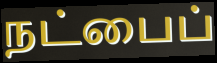
நட்பைப்